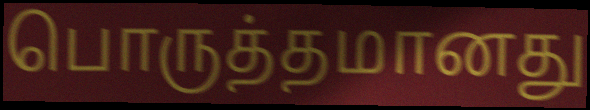
பொருத்தமானது